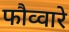
फौव्वारे